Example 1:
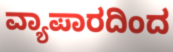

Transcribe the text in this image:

ವ್ಯಾಪಾರದಿಂದ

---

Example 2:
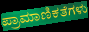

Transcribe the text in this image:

ಪ್ರಾಮಾಣಿಕತೆಗಳು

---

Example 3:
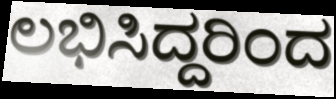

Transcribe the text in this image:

ಲಭಿಸಿದ್ದರಿಂದ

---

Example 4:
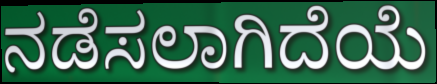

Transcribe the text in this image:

ನಡೆಸಲಾಗಿದೆಯೆ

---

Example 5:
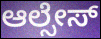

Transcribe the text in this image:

ಆಲ್ಸೇಸ್